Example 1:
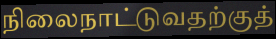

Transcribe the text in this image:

நிலைநாட்டுவதற்குத்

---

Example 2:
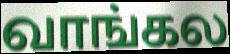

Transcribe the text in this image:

வாங்கல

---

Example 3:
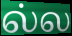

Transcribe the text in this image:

ல்ல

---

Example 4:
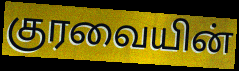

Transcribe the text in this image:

குரவையின்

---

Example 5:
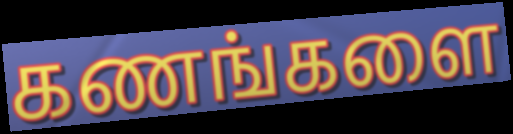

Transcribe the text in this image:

கணங்களை